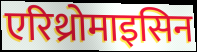
एरिथ्रोमाइसिन